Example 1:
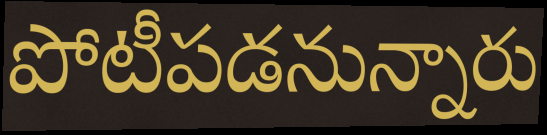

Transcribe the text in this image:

పోటీపడనున్నారు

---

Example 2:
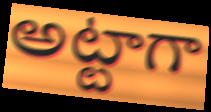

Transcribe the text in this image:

అట్టాగా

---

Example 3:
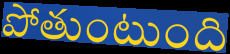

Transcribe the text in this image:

పోతుంటుంది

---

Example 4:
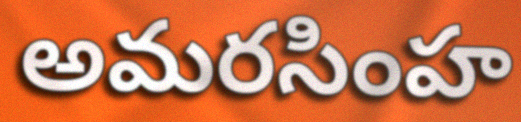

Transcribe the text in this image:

అమరసింహ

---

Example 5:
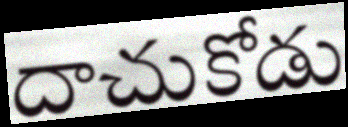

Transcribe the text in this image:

దాచుకోడు